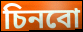
চিনবো